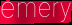
emery